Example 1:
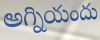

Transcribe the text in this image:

అగ్నియందు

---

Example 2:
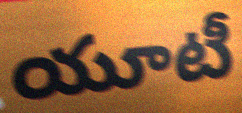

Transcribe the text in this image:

యూటీ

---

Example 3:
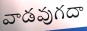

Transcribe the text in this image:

వాడవుగదా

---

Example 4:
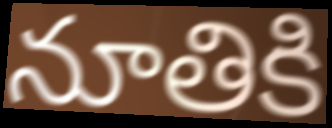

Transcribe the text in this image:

నూతికి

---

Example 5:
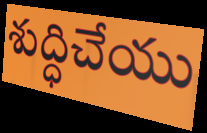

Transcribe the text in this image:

శుద్ధిచేయు